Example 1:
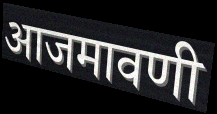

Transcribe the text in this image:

आजमावणी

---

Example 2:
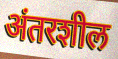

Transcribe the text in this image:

अंतरशील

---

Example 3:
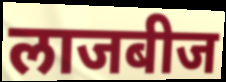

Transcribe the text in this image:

लाजबीज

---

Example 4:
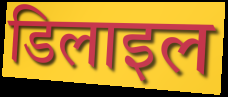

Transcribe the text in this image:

डिलाइल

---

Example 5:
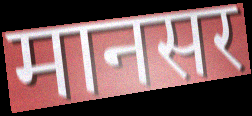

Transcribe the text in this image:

मानसर